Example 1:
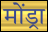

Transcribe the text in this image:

मोंड्रा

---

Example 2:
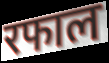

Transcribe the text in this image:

रफाल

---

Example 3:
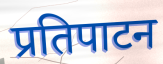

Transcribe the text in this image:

प्रतिपाटन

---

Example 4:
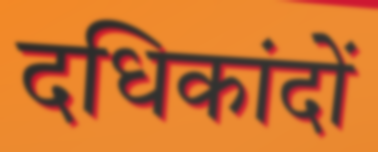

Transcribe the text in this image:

दधिकांदों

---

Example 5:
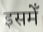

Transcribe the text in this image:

इसमेँ